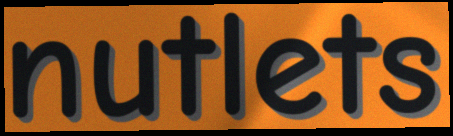
nutlets